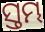
ସ୍ତମ୍ଭ